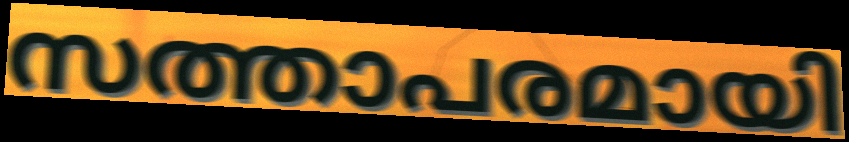
സത്താപരമായി